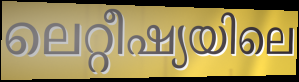
ലെറ്റീഷ്യയിലെ